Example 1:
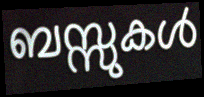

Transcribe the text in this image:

ബസ്സുകൾ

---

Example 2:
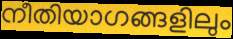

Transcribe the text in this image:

നീതിയാഗങ്ങളിലും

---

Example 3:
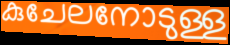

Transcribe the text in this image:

കുചേലനോടുള്ള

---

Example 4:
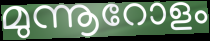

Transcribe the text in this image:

മുന്നൂറോളം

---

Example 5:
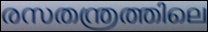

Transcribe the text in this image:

രസതന്ത്രത്തിലെ